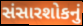
સંસારશોકનું